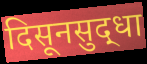
दिसूनसुद्धा